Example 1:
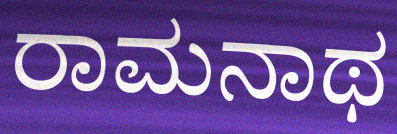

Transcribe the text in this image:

ರಾಮನಾಥ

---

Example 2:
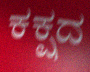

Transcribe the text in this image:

ಕಕ್ಷದ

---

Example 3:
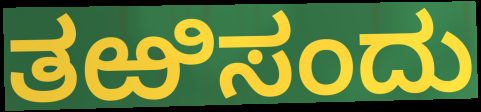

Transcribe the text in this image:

ತಱಿಸಂದು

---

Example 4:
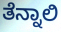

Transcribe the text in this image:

ತೆನ್ನಾಲಿ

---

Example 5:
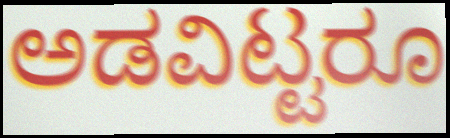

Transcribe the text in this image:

ಅಡವಿಟ್ಟರೂ